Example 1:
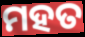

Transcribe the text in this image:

ମହତ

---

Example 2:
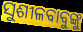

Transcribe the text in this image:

ସୁଶୀଳବାବୁଙ୍କୁ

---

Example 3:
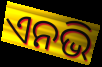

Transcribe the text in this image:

ଏନଭି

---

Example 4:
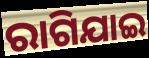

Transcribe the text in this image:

ରାଗିଯାଇ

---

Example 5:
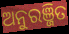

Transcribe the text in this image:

ଅନୁରଞ୍ଜିତ